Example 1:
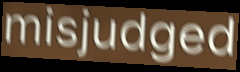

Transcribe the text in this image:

misjudged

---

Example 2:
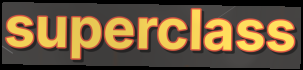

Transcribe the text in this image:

superclass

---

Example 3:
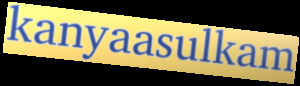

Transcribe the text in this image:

kanyaasulkam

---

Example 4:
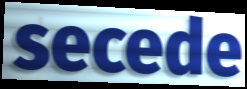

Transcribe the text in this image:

secede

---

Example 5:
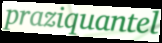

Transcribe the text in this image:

praziquantel